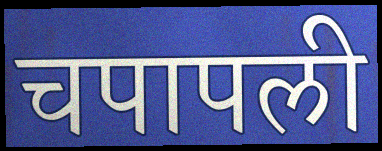
चपापली